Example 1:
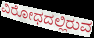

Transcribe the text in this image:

ವಿರೋಧದಲ್ಲಿರುವ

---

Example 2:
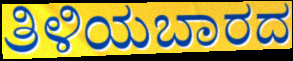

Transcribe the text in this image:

ತಿಳಿಯಬಾರದ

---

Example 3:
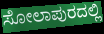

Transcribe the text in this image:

ಸೋಲಾಪುರದಲ್ಲಿ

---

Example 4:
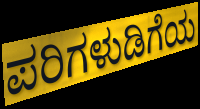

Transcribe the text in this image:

ಪರಿಗಳುಡಿಗೆಯ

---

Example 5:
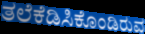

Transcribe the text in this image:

ತಲೆಕೆಡಿಸಿಕೊಂಡಿರುವ